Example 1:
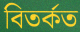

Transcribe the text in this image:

বিতৰ্কত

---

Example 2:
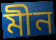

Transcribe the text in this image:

মীন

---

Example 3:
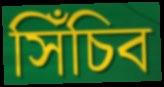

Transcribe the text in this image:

সিঁচিব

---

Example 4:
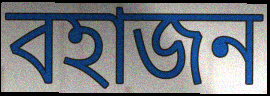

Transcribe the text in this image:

বহাজন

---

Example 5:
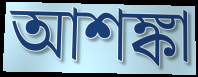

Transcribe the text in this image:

আশঙ্কা